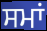
ਸਮਾਂ